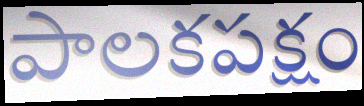
పాలకపక్షం